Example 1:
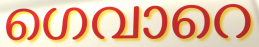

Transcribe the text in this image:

ഗെവാറെ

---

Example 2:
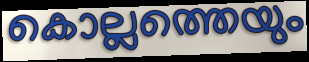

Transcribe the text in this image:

കൊല്ലത്തെയും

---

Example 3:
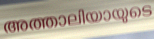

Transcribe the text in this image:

അത്താലിയായുടെ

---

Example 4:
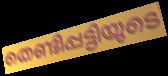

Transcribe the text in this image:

തെണ്ടിപ്പട്ടിയുടെ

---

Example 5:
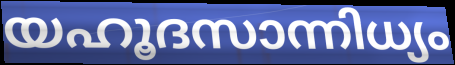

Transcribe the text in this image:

യഹൂദസാന്നിധ്യം